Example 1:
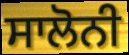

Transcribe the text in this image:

ਸਾਲੋਨੀ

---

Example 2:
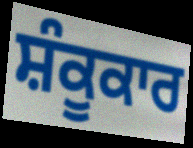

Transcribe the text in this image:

ਸ਼ੰਕੂਕਾਰ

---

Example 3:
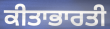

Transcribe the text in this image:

ਕੀਤਾਭਾਰਤੀ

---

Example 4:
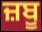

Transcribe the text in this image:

ਜ਼ਬੂ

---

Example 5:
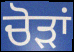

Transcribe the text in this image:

ਚੋੜਾਂ